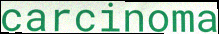
carcinoma